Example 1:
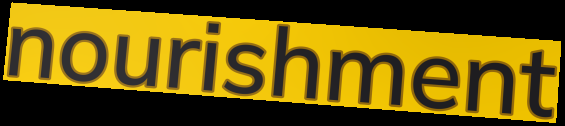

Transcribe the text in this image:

nourishment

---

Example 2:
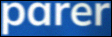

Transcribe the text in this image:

parer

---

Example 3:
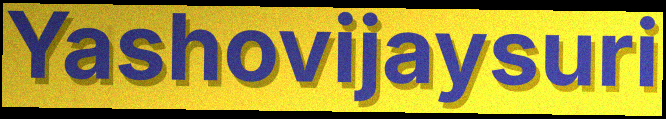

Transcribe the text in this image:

Yashovijaysuri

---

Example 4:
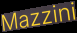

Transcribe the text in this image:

Mazzini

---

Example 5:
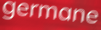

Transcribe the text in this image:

germane